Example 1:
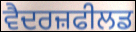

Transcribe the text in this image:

ਵੈਦਰਜ਼ਫੀਲਡ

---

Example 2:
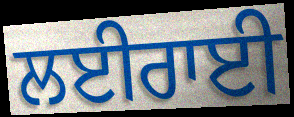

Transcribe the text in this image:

ਲਈਰਾਈ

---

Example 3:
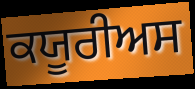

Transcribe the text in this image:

ਕਯੂਰੀਅਸ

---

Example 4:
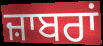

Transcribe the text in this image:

ਜ਼ਾਬਰਾਂ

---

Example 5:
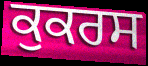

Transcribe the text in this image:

ਕੁਕਰਸ